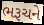
ભરૂચને